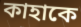
কাহাকে